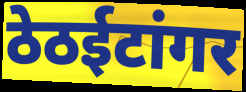
ठेठईटांगर